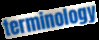
terminology